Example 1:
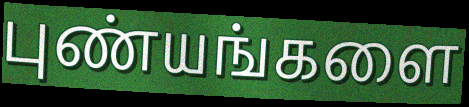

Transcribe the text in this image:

புண்யங்களை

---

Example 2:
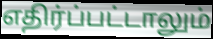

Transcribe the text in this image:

எதிர்ப்பட்டாலும்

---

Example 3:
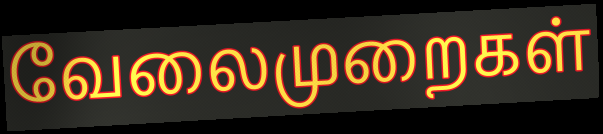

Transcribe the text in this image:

வேலைமுறைகள்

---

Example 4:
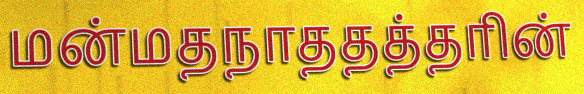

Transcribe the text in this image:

மன்மதநாததத்தரின்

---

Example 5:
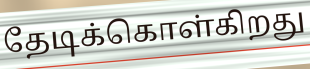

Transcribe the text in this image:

தேடிக்கொள்கிறது